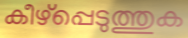
കീഴ്പ്പെടുത്തുക